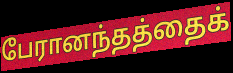
பேரானந்தத்தைக்